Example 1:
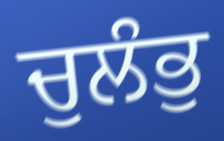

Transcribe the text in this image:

ਚੁਲੰਭੁ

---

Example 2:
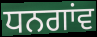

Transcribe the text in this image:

ਧਨਗਾਂਵ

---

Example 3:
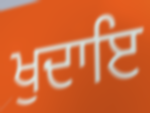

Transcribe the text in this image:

ਖੁਦਾਇ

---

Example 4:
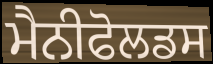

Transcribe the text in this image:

ਮੈਨੀਫੋਲਡਸ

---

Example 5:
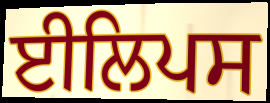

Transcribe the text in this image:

ਈਲਿਪਸ